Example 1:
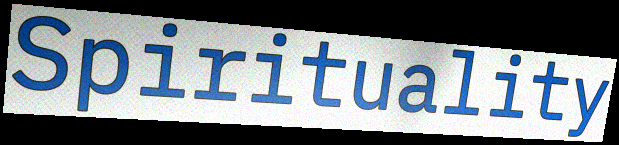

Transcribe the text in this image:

Spirituality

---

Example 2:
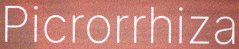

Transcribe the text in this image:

Picrorrhiza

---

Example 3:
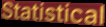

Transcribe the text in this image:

Statistical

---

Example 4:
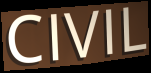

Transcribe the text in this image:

CIVIL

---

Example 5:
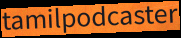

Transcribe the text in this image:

tamilpodcaster